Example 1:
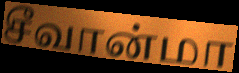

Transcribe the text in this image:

சீவான்மா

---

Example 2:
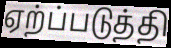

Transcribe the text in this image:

ஏற்ப்படுத்தி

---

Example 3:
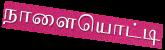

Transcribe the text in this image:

நாளையொட்டி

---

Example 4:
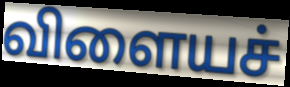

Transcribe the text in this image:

விளையச்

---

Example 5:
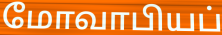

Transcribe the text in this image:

மோவாபியப்